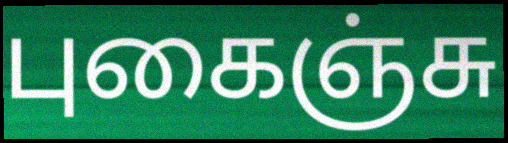
புகைஞ்சு